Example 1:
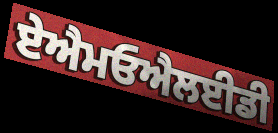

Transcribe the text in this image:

ਏਐਮਓਐਲਈਡੀ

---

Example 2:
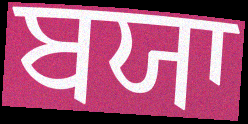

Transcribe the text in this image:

ਬਯਾ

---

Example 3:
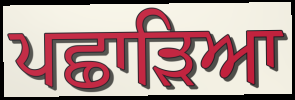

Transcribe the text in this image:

ਪਛਾੜਿਆ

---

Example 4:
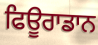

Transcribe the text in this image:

ਫਿਊਰਾਡਾਨ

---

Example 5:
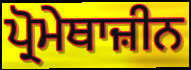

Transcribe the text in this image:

ਪ੍ਰੋਮੇਥਾਜ਼ੀਨ